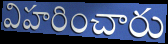
విహరించారు